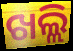
ଖଲ୍ଲି